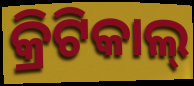
କ୍ରିଟିକାଲ୍